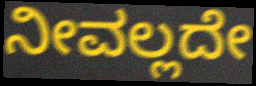
ನೀವಲ್ಲದೇ